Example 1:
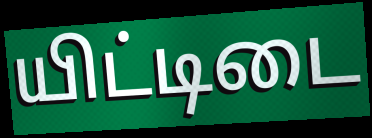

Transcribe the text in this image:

யிட்டிடை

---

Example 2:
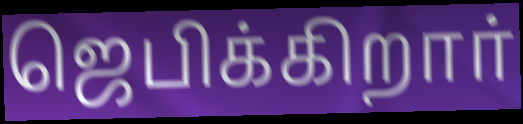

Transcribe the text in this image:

ஜெபிக்கிறார்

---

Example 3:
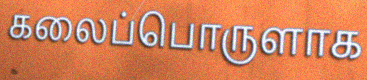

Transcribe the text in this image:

கலைப்பொருளாக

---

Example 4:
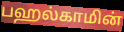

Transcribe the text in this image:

பஹல்காமின்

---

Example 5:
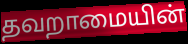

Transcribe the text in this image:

தவறாமையின்